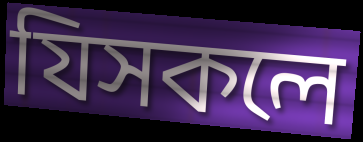
যিসকলে